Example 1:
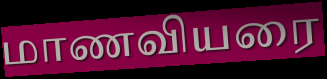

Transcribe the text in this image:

மாணவியரை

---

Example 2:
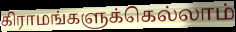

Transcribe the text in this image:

கிராமங்களுக்கெல்லாம்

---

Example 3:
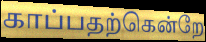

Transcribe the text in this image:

காப்பதற்கென்றே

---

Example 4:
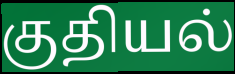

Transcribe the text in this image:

குதியல்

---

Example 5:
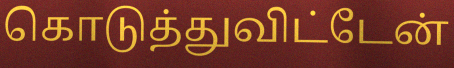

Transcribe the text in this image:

கொடுத்துவிட்டேன்